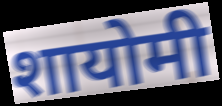
शायोमी